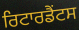
ਰਿਟਾਰਡੈਂਟਸ